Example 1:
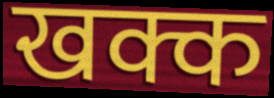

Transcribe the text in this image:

खक्क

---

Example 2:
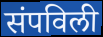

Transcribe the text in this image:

संपविली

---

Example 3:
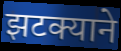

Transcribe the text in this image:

झटक्याने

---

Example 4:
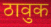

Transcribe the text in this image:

ठावुक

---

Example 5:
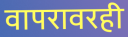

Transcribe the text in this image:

वापरावरही